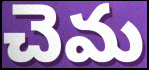
చెమ